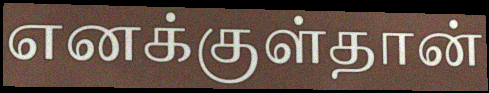
எனக்குள்தான்